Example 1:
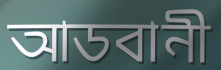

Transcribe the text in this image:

আডবানী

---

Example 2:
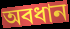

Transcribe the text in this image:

অবধান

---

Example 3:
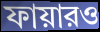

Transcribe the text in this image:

ফায়ারও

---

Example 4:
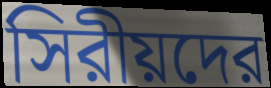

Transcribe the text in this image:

সিরীয়দের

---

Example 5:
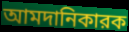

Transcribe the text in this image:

আমদানিকারক